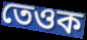
তেওক